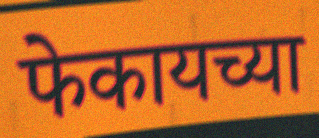
फेकायच्या